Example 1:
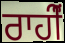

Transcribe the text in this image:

ਰਾਹੀਂੰ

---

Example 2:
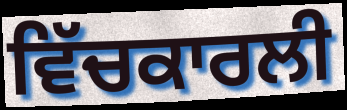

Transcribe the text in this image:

ਵਿੱਚਕਾਰਲੀ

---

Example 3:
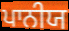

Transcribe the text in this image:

ਪਾਨੀਯ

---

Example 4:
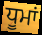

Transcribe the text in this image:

ਧੂਮਾਂ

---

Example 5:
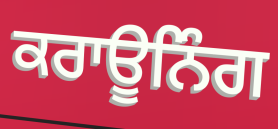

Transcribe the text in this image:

ਕਰਾਊਨਿੰਗ